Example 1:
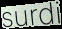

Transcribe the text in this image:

surdi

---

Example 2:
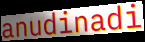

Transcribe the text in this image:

anudinadi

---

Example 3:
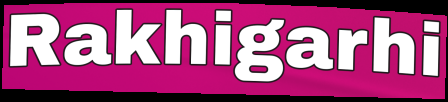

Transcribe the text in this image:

Rakhigarhi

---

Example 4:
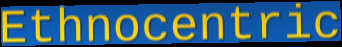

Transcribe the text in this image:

Ethnocentric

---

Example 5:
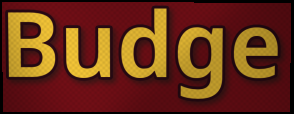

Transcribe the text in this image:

Budge